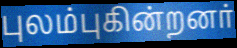
புலம்புகின்றனர்